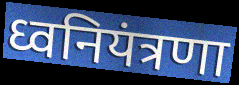
ध्वनियंत्रणा